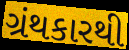
ગ્રંથકારથી